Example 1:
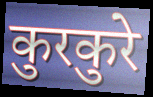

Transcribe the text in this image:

कुरकुरे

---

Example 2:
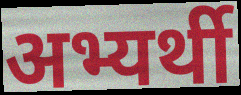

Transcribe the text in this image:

अभ्यर्थी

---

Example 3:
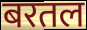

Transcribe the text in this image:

बरतल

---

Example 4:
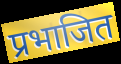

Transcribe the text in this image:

प्रभाजित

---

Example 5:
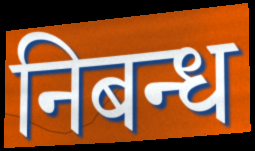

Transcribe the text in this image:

निबन्ध